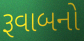
રૂવાબનો